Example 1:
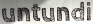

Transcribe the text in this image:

untundi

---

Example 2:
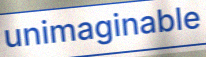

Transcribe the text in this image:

unimaginable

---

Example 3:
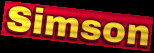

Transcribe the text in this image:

Simson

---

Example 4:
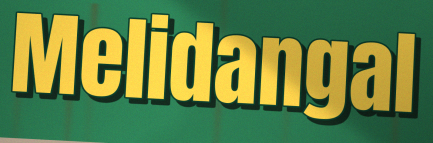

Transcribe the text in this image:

Melidangal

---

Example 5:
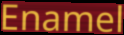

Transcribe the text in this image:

Enamel